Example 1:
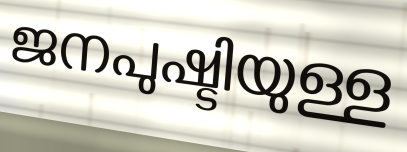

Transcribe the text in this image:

ജനപുഷ്ടിയുള്ള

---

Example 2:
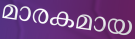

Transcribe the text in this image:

മാരകമായ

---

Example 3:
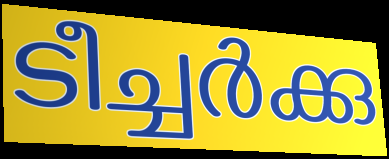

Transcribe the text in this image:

ടീച്ചർക്കു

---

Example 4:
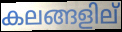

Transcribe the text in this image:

കലങ്ങളില്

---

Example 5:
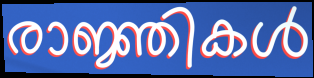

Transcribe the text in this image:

രാജ്ഞികൾ